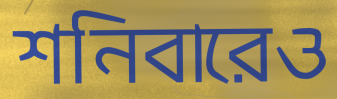
শনিবারেও